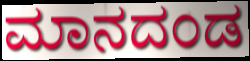
ಮಾನದಂಡ